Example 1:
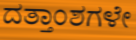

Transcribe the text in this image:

ದತ್ತಾಂಶಗಳೇ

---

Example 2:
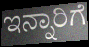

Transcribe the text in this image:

ಇನ್ನಾರಿಗೆ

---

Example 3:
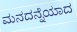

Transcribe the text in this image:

ಮನದನ್ನೆಯಾದ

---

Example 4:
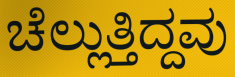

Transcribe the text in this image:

ಚೆಲ್ಲುತ್ತಿದ್ದವು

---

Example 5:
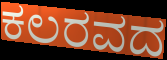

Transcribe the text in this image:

ಕಲರವದ